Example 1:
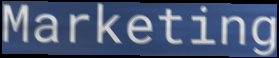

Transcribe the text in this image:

Marketing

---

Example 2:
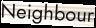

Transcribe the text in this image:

Neighbour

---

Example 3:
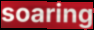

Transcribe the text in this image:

soaring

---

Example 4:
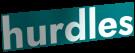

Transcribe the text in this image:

hurdles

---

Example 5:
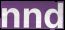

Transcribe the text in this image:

nnd